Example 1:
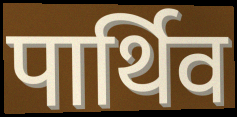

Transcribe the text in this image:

पार्थिव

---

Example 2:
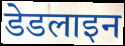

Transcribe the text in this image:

डेडलाइन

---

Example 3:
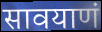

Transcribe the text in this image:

सावयाणं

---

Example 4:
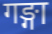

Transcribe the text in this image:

गङ्गा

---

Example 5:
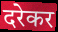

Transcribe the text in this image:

दरेकर